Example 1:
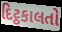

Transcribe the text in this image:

દિટ્ઠકાલતો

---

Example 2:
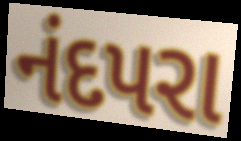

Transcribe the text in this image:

નંદપરા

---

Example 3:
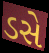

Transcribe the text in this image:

ડસે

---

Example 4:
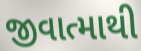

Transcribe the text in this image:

જીવાત્માથી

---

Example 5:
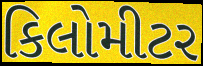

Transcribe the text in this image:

કિલોમીટર